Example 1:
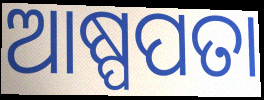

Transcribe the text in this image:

ଆଷ୍ପପତା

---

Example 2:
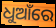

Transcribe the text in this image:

ଧୁଆଁରେ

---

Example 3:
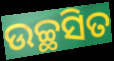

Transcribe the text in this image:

ଉଚ୍ଛସିତ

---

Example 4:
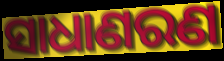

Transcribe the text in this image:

ସାଧାଣରଣ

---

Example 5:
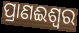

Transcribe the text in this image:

ପ୍ରାଣଈଶ୍ୱର